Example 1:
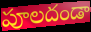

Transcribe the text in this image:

పూలదండా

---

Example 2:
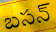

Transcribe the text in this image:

బసన్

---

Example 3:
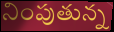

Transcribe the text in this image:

నింపుతున్న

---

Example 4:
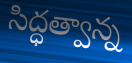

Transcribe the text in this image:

సిద్ధత్వాన్న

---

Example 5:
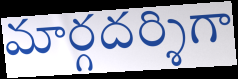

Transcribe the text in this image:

మార్గదర్శిగా